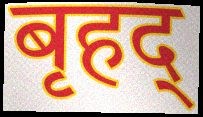
बृहद्